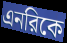
এনরিকে